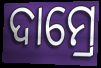
ଦାମ୍ରେ